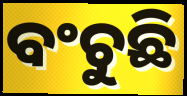
ବଂଚୁଛି